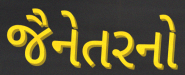
જૈનેતરનો